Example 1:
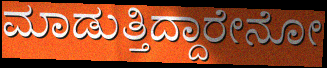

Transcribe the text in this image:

ಮಾಡುತ್ತಿದ್ದಾರೇನೋ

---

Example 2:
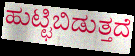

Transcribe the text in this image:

ಹುಟ್ಟಿಬಿಡುತ್ತದೆ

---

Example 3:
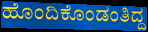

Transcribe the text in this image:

ಹೊಂದಿಕೊಂಡಂತಿದ್ದ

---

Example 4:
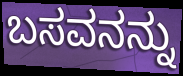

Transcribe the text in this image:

ಬಸವನನ್ನು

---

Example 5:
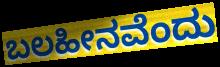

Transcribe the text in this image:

ಬಲಹೀನವೆಂದು